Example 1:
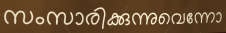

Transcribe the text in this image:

സംസാരിക്കുന്നുവെന്നോ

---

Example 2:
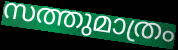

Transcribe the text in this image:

സത്തുമാത്രം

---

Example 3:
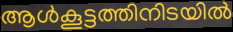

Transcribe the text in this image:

ആൾകൂട്ടത്തിനിടയിൽ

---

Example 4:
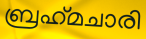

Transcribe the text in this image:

ബ്രഹ്‌മചാരി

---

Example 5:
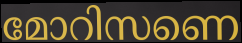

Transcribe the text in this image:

മോറിസണെ